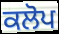
ਕਲੋਪ